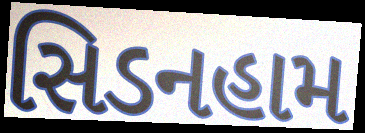
સિડનહામ